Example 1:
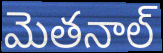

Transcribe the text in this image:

మెతనాల్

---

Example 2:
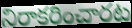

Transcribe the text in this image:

నిరాకరించారట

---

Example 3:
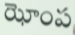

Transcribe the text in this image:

ఝోంప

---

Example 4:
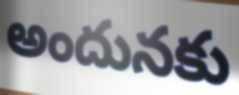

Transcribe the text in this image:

అందునకు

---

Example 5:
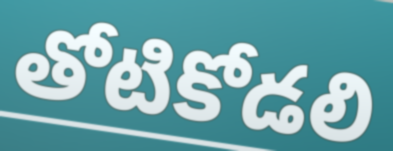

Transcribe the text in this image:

తోటికోడలి